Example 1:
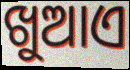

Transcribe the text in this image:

ଖୁଆଏ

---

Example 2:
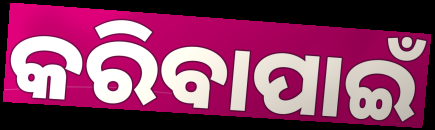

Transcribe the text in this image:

କରିବାପାଇଁ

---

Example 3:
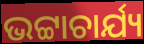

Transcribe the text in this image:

ଭଟ୍ଟାଚାର୍ଯ୍ୟ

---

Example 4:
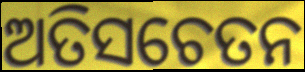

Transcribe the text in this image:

ଅତିସଚେତନ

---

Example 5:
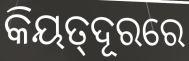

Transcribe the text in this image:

କିୟତ୍‌ଦୂରରେ